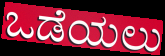
ಒಡೆಯಲು